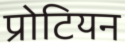
प्रोटियन